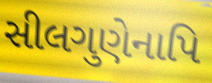
સીલગુણેનાપિ